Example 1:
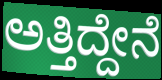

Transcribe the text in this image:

ಅತ್ತಿದ್ದೇನೆ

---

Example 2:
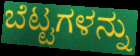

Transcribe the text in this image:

ಬೆಟ್ಟಗಳನ್ನು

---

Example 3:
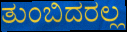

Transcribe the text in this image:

ತುಂಬಿದರಲ್ಲ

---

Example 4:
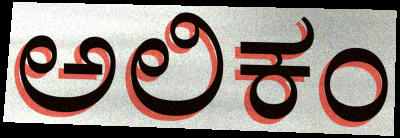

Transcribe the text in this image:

ಅಲಿಕಂ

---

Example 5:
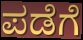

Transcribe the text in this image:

ಪಡೆಗೆ